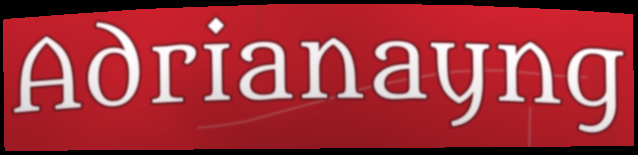
Adrianayng